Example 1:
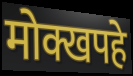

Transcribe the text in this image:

मोक्खपहे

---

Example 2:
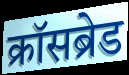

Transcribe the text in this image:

क्रॉसब्रेड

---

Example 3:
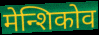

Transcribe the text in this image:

मेन्शिकोव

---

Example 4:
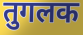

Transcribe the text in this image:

तुगलक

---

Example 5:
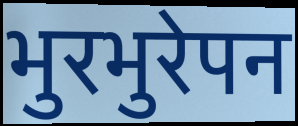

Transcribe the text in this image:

भुरभुरेपन